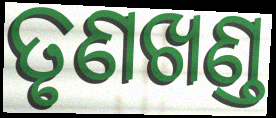
ତୃଣଖଣ୍ଡ